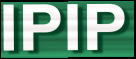
IPIP